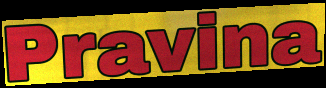
Pravina